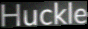
Huckle